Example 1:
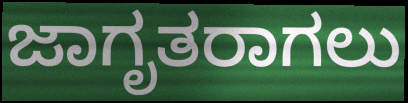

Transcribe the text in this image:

ಜಾಗೃತರಾಗಲು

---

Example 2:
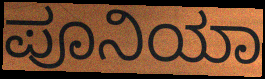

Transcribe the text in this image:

ಪೂನಿಯಾ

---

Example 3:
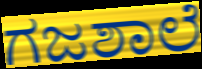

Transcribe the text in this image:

ಗಜಶಾಲೆ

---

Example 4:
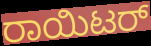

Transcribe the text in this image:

ರಾಯಿಟರ್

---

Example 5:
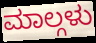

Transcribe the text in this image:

ಮಾಲ್ಗಳು